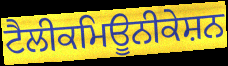
ਟੈਲੀਕਮਿਊਨੀਕੇਸ਼ਨ